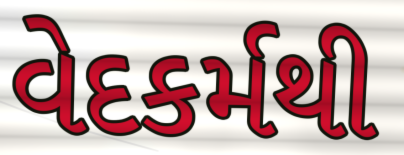
વેદકર્મથી